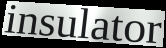
insulator